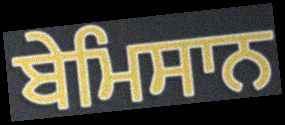
ਬੇਮਿਸਾਨ